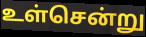
உள்சென்று